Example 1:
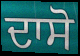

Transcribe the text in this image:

ਦਾਸੋ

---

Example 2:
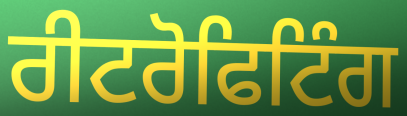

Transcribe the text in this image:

ਰੀਟਰੋਫਿਟਿੰਗ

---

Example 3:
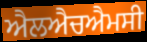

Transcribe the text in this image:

ਐਲਐਚਐਮਸੀ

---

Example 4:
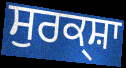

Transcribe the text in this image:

ਸੁਰਕ੍ਸ਼ਾ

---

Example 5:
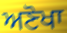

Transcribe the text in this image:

ਅਣੋਖਾ